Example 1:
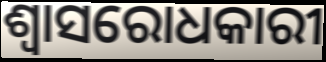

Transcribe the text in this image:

ଶ୍ୱାସରୋଧକାରୀ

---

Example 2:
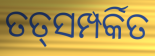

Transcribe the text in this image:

ତତ୍‌ସମ୍ପର୍କିତ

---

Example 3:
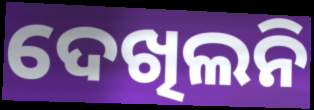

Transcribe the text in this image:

ଦେଖିଲନି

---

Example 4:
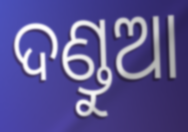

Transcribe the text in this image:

ଦଣ୍ଡୁଆ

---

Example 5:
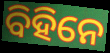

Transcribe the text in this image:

ବିହିନେ